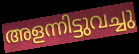
അളന്നിട്ടുവച്ചു